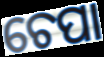
ଚେପା